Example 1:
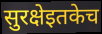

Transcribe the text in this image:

सुरक्षेइतकेच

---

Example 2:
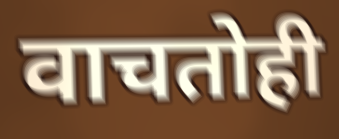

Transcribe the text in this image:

वाचतोही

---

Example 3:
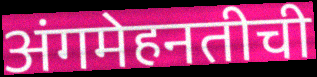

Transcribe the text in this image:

अंगमेहनतीची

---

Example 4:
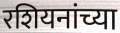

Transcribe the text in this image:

रशियनांच्या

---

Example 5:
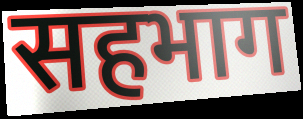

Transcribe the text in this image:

सहभाग